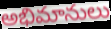
అభిమానులు